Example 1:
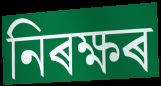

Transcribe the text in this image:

নিৰক্ষৰ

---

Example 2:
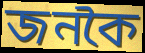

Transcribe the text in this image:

জনকৈ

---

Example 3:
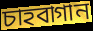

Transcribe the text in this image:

চাহবাগান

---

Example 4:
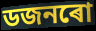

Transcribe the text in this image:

ডজনৰো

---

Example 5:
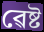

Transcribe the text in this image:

ৱেষ্ট